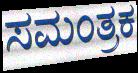
ಸಮಂತ್ರಕ